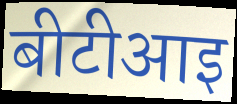
बीटीआइ